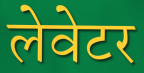
लेवेटर